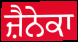
ਜ਼ੈਨੇਕਾ